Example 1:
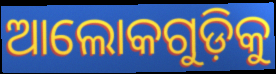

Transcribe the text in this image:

ଆଲୋକଗୁଡ଼ିକୁ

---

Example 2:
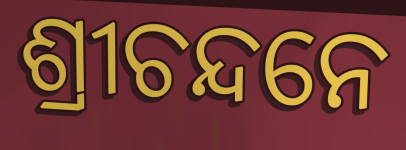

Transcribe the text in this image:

ଶ୍ରୀଚନ୍ଦନେ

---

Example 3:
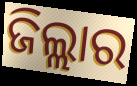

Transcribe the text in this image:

ଜିଲ୍ଲାର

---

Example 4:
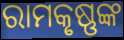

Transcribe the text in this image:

ରାମକୃଷ୍ଣଙ୍କ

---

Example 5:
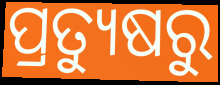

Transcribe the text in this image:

ପ୍ରତ୍ୟୁଷରୁ